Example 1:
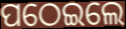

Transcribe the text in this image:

ପଠେଇଲେ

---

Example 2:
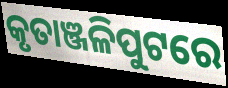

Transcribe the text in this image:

କୃତାଞ୍ଜଳିପୁଟରେ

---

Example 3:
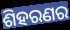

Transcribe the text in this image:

ଶିହରଣର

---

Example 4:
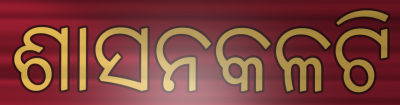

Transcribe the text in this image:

ଶାସନକଳଟି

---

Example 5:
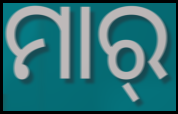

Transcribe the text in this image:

ମାର୍